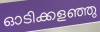
ഓടിക്കളഞ്ഞു